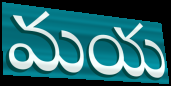
మయ